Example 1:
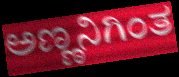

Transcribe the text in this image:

ಅಣ್ಣನಿಗಿಂತ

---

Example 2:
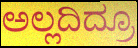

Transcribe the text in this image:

ಅಲ್ಲದಿದ್ರೂ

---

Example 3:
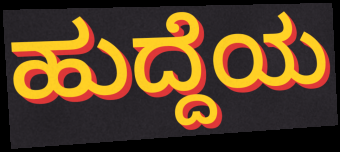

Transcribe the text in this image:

ಹುದ್ದೆಯ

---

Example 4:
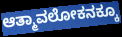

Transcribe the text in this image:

ಆತ್ಮಾವಲೋಕನಕ್ಕೂ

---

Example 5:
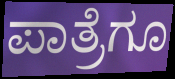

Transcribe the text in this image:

ಪಾತ್ರೆಗೂ